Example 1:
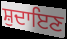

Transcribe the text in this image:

ਸ਼ੁਦਾਇਣ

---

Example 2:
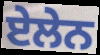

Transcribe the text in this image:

ਏਲੇਨ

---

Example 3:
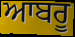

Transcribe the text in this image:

ਆਬਰੂ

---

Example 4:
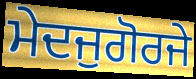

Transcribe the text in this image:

ਮੇਦਜੁਗੋਰਜੇ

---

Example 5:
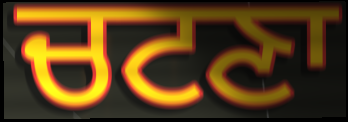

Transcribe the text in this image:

ਚਟਣਾ